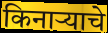
किनाऱ्याचे